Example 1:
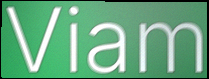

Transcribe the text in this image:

Viam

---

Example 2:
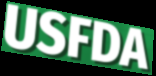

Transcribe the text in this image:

USFDA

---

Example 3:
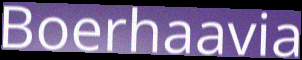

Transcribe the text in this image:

Boerhaavia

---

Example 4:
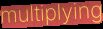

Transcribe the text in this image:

multiplying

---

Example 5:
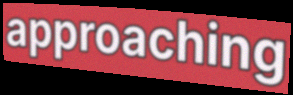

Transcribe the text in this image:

approaching